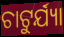
ଚାଟୁର୍ଯ୍ୟା